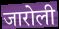
जारोली